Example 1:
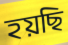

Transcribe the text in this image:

হয়ছি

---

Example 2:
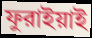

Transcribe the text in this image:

ফুরাইয়াই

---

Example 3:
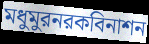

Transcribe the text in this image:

মধুমুরনরকবিনাশন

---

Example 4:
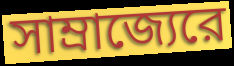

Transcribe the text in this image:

সাম্রাজ্যেরে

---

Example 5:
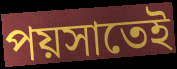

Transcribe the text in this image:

পয়সাতেই